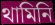
থামিনি